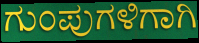
ಗುಂಪುಗಳಿಗಾಗಿ